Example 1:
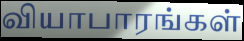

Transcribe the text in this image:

வியாபாரங்கள்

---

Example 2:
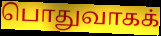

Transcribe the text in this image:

பொதுவாகக்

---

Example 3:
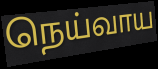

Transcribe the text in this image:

நெய்வாய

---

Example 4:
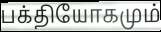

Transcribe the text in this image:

பக்தியோகமும்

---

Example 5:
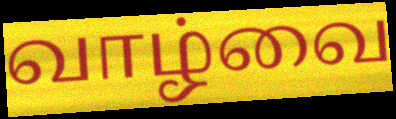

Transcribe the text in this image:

வாழ்வை